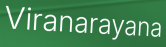
Viranarayana